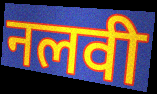
नलवी